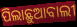
ପିଲାଛୁଆବାଲୀ